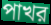
পাখর